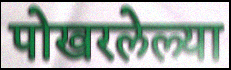
पोखरलेल्या